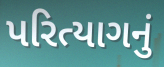
પરિત્યાગનું